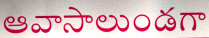
ఆవాసాలుండగా